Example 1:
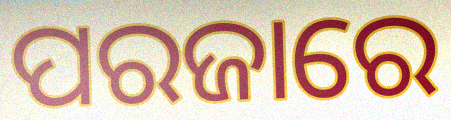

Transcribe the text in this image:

ପରଜାରେ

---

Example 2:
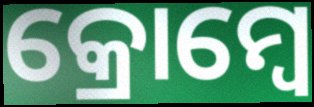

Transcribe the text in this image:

କ୍ରୋମ୍ବେ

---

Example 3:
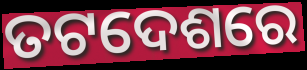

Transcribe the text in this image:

ତଟଦେଶରେ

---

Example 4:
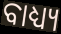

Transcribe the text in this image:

ବାଧ୍ୟ୍ୟ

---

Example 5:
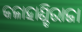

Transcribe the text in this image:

କଳାହାଣ୍ଡିରାଜା